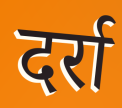
दर्रा